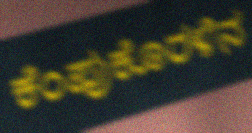
ಕೆಂಪುಕೊರಳಿನ